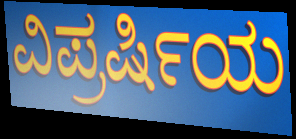
ವಿಪ್ರರ್ಷಿಯ